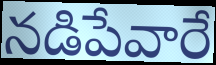
నడిపేవారే